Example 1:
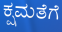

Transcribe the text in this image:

ಕ್ಷಮತೆಗೆ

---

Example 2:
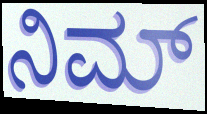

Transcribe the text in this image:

ನಿಮ್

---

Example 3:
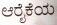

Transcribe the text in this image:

ಆರೈಕೆಯ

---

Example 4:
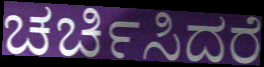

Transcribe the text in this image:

ಚರ್ಚಿಸಿದರೆ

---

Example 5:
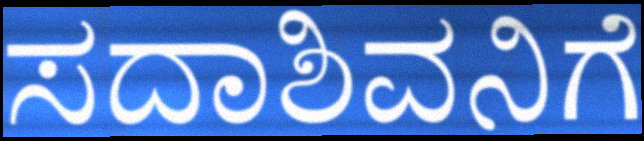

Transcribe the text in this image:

ಸದಾಶಿವನಿಗೆ